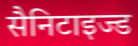
सैनिटाइज्ड